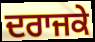
ਦਰਾਜਕੇ